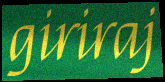
giriraj